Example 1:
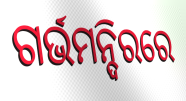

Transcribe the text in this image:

ଗର୍ଭମନ୍ଦିରରେ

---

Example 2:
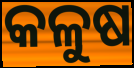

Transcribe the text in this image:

କଳୁଷ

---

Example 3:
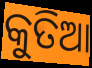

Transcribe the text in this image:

କୁତିଆ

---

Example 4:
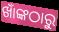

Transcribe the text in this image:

ଖାଁଙ୍କଠାରୁ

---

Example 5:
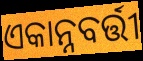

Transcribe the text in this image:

ଏକାନ୍ନବର୍ତ୍ତୀ